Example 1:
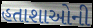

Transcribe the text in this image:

હતાશાઓની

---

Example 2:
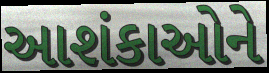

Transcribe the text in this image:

આશંકાઓને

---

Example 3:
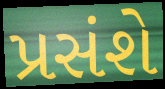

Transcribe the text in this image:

પ્રસંશે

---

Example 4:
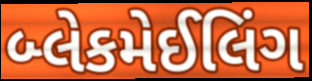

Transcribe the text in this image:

બ્લેકમેઈલિંગ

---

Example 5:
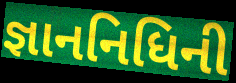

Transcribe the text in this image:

જ્ઞાનનિધિની